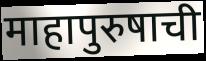
माहापुरुषाची